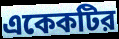
একেকটির